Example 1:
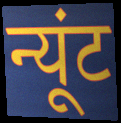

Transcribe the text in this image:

न्यूंट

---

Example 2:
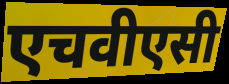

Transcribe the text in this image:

एचवीएसी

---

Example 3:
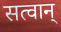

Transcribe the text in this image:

सत्वान्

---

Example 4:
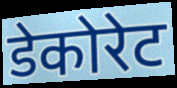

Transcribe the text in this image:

डेकोरेट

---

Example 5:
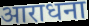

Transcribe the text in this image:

आराधना